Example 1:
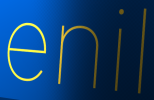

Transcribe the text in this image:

enil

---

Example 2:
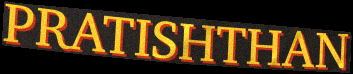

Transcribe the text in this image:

PRATISHTHAN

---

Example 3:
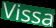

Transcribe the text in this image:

Vissa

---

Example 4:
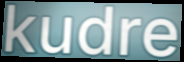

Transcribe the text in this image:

kudre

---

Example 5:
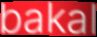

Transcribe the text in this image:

bakal